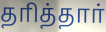
தரித்தார்